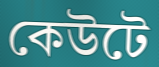
কেউটে